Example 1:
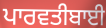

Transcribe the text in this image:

ਪਾਰਵਤੀਬਾਈ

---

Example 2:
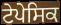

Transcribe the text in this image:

ਟੇਪੇਸਿਕ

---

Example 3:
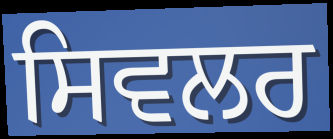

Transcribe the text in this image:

ਸਿਵਲਰ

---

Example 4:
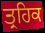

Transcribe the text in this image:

ਤ੍ਰਹਿਕ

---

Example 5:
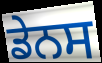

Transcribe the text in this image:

ਡੇਨਸ